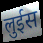
लुईस